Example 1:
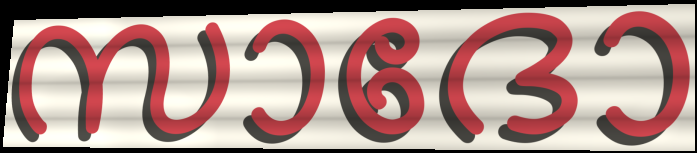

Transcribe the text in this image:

സാദോ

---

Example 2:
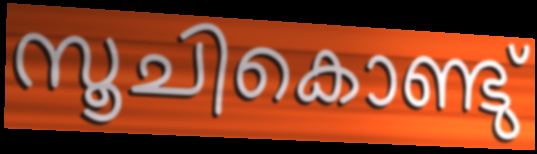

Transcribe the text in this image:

സൂചികൊണ്ടു്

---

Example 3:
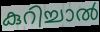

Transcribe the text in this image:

കുറിച്ചാൽ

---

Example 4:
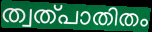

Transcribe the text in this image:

ത്വത്പാതിതം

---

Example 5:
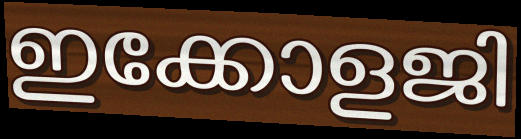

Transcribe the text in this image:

ഇക്കോളജി